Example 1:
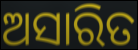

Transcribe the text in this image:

ଅସାରିତ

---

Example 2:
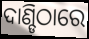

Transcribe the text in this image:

ଦାଣ୍ଡିଠାରେ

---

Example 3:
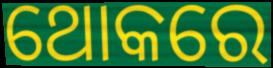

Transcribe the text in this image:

ଥୋକରେ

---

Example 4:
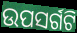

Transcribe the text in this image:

ଉପସର୍ଗଟି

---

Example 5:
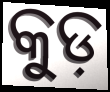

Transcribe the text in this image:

କୁଡ଼